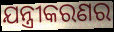
ଯନ୍ତ୍ରୀକରଣର